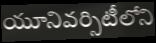
యూనివర్సిటీలోని